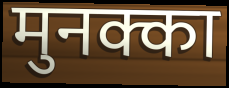
मुनक्का